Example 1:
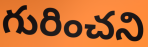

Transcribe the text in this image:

గురించని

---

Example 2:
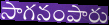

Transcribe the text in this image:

సాగనంపారు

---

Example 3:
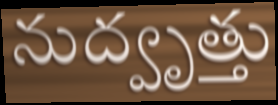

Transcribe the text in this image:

నుద్వృత్తు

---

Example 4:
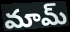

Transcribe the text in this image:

మామ్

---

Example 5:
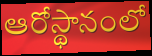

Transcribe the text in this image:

ఆరోస్థానంలో